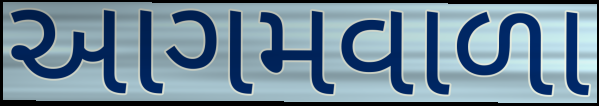
આગમવાળા